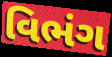
વિભંગ